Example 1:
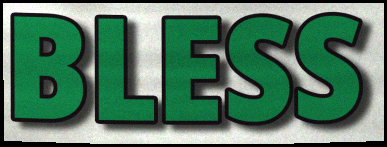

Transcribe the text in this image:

BLESS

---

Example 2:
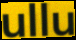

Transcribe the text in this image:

ullu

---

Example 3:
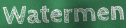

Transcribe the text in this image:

Watermen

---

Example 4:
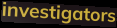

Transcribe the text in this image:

investigators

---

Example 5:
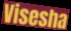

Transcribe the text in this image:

Visesha